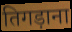
तिगड़ाना